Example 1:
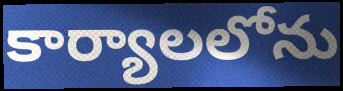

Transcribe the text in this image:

కార్యాలలోను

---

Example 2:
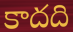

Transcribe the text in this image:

కాదది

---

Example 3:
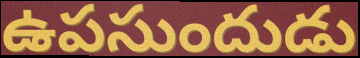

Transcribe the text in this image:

ఉపసుందుడు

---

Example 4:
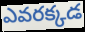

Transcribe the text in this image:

ఎవరక్కడ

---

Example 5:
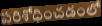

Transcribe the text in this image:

పరిశోధించడంలో